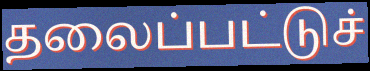
தலைப்பட்டுச்